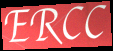
ERCC